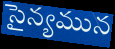
సైన్యమున